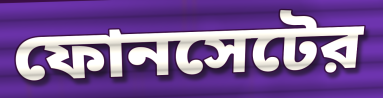
ফোনসেটের